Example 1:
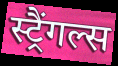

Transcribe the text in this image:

स्ट्रैंगल्स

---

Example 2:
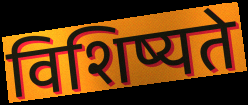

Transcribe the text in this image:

विशिष्यते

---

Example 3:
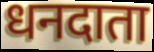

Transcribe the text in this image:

धनदाता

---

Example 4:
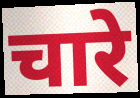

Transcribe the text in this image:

चारे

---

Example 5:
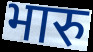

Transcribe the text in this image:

भारु